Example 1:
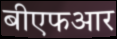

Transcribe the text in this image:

बीएफआर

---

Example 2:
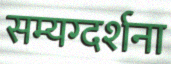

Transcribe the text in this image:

सम्यग्दर्शना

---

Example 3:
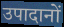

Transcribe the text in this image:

उपादानों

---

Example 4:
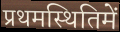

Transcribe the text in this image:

प्रथमस्थितिमें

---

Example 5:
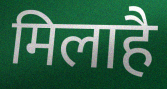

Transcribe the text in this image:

मिलाहै